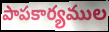
పాపకార్యముల